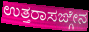
ಉತ್ತರಾಸಙ್ಗೇನ